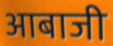
आबाजी